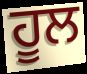
ਹੂਲ